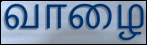
வாழை